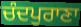
ਚੰਦਪੁਰਾਣਾ